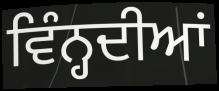
ਵਿੰਨ੍ਹਦੀਆਂ